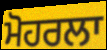
ਮੋਹਰਲਾ